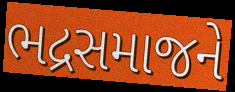
ભદ્રસમાજને